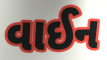
વાઈન